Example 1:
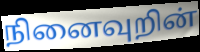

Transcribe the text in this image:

நினைவுறின்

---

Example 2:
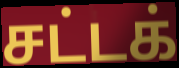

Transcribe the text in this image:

சட்டக்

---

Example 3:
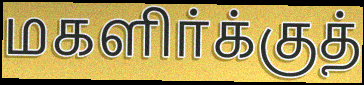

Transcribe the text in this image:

மகளிர்க்குத்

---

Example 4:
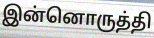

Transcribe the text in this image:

இன்னொருத்தி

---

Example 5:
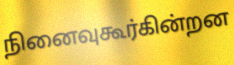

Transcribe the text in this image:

நினைவுகூர்கின்றன